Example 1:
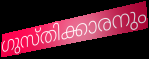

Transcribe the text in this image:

ഗുസ്തിക്കാരനും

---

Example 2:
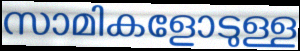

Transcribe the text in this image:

സാമികളോടുള്ള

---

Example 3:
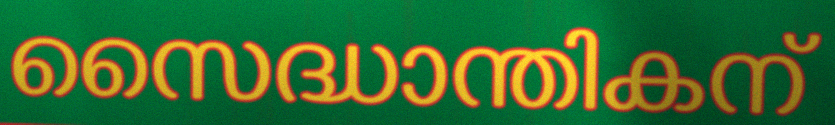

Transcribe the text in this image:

സൈദ്ധാന്തികന്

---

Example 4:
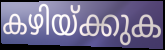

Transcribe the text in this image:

കഴിയ്ക്കുക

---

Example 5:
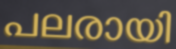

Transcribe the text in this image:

പലരായി